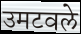
उमटवले